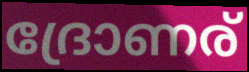
ദ്രോണര്